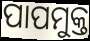
ପାପମୁକ୍ତ